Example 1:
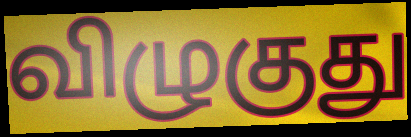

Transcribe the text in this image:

விழுகுது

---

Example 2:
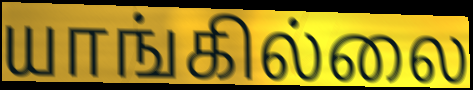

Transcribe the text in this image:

யாங்கில்லை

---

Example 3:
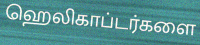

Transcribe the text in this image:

ஹெலிகாப்டர்களை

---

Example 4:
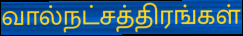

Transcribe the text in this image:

வால்நட்சத்திரங்கள்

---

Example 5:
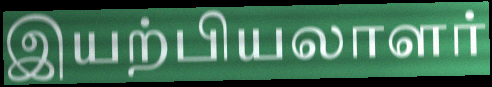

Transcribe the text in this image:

இயற்பியலாளர்